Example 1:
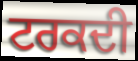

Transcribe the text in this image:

ਟਰਕਦੀ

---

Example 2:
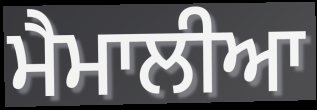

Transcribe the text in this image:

ਮੈਮਾਲੀਆ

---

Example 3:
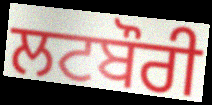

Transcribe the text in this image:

ਲਟਬੌਰੀ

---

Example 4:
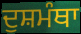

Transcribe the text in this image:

ਦੁਸ਼ਮੰਥਾ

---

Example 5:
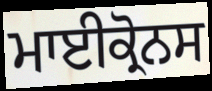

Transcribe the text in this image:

ਮਾਈਕ੍ਰੋਨਸ